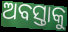
ଅବସ୍ତାକୁ